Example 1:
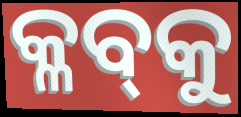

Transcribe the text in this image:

କ୍ଳବ୍‌କୁ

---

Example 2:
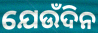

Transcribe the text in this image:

ଯେଉଁଦିନ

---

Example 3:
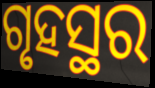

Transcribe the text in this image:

ଗୃହସ୍ଥର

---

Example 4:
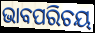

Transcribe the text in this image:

ଭାବପରିଚୟ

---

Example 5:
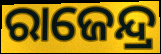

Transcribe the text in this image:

ରାଜେନ୍ଦ୍ର